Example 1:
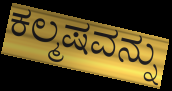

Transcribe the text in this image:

ಕಲ್ಮಷವನ್ನು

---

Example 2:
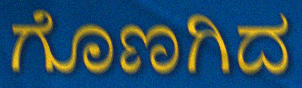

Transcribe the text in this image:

ಗೊಣಗಿದ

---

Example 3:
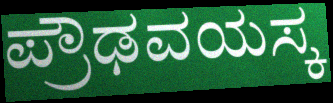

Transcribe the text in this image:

ಪ್ರೌಢವಯಸ್ಕ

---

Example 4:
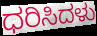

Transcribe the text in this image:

ಧರಿಸಿದಳು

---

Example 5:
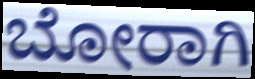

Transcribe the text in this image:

ಬೋರಾಗಿ